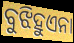
ବୁଝିହୁଏନା